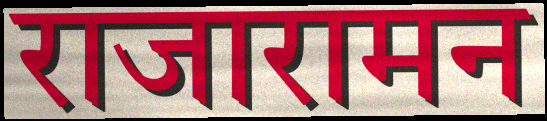
राजारामन